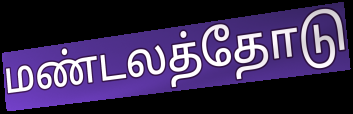
மண்டலத்தோடு